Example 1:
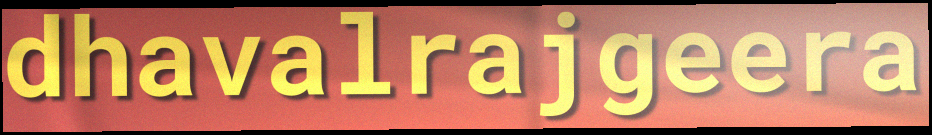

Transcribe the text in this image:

dhavalrajgeera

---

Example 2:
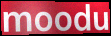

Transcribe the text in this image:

moodu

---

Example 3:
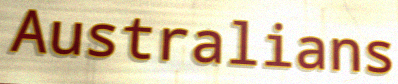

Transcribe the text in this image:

Australians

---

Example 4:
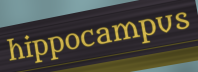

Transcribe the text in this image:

hippocampus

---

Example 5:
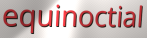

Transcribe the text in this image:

equinoctial